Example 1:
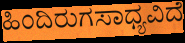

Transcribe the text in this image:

ಹಿಂದಿರುಗಸಾಧ್ಯವಿದೆ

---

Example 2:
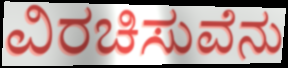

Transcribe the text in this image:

ವಿರಚಿಸುವೆನು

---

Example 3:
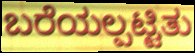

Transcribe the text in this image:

ಬರೆಯಲ್ಪಟ್ಟಿತು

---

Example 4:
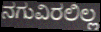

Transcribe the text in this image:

ನಗುವಿರಲಿಲ್ಲ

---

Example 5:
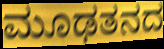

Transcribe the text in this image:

ಮೂಢತನದ